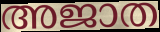
അജാത